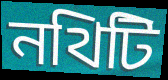
নথিটি